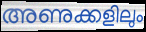
അണുക്കളിലും